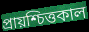
প্রায়শ্চিত্তকাল